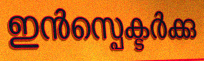
ഇൻസ്പെക്ടർക്കു